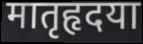
मातृहृदया